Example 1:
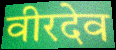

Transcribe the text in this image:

वीरदेव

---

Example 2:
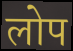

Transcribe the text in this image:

लोप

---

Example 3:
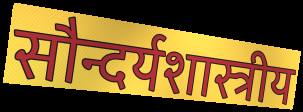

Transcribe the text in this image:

सौन्दर्यशास्त्रीय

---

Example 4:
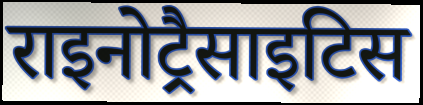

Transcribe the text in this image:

राइनोट्रैसाइटिस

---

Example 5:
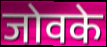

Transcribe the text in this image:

जोवके